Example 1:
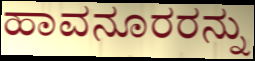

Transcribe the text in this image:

ಹಾವನೂರರನ್ನು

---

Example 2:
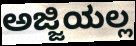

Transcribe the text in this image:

ಅಜ್ಜಿಯಲ್ಲ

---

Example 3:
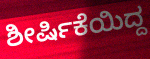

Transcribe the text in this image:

ಶೀರ್ಷಿಕೆಯಿದ್ದ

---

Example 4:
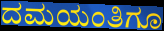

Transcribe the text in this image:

ದಮಯಂತಿಗೂ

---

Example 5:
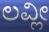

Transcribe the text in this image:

ಲವ್ಲೀ